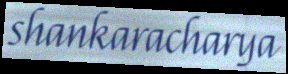
shankaracharya